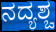
ನದ್ಯಶ್ಚ